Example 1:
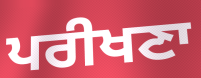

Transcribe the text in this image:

ਪਰੀਖਣਾ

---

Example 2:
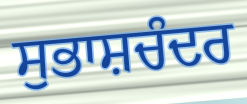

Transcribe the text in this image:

ਸੁਭਾਸ਼ਚੰਦਰ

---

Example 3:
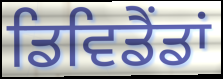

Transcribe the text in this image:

ਡਿਵਿਡੈਂਡਾਂ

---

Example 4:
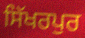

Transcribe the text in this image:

ਸਿੱਖਰਪੁਰ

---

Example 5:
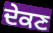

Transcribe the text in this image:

ਦੇਕਣ